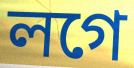
লগে